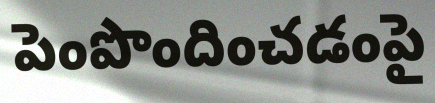
పెంపొందించడంపై